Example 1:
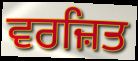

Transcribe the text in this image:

ਵਰਜ਼ਿਤ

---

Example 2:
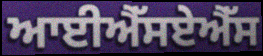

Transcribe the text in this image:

ਆਈਐੱਸਏਐੱਸ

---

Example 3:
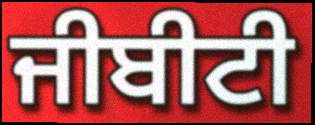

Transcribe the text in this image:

ਜੀਬੀਟੀ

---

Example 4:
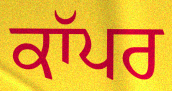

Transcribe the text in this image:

ਕਾੱਪਰ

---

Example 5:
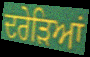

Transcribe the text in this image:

ਦਰੇੜਿਆਂ